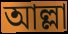
আল্লা